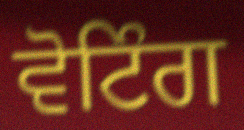
ਵੋਟਿੰਗ